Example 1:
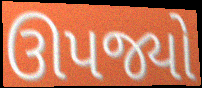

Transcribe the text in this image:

ઊપજ્યો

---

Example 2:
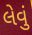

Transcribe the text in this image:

લેવું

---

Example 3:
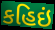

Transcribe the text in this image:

કહિઇં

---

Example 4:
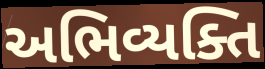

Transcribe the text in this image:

અભિવ્યક્તિ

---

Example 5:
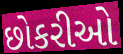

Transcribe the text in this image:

છોકરીઓ